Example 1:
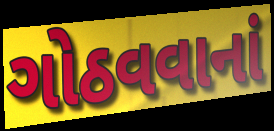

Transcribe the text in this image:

ગોઠવવાનાં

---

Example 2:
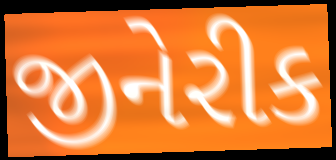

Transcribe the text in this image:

જીનેરીક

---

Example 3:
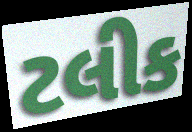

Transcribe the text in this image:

ટલીક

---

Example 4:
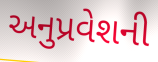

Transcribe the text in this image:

અનુપ્રવેશની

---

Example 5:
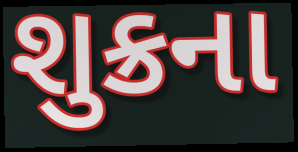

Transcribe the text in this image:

શુક્રના